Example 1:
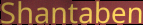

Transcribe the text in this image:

Shantaben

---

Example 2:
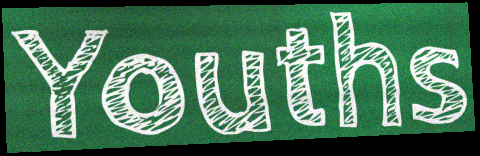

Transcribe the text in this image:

Youths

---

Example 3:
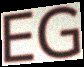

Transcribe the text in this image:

EG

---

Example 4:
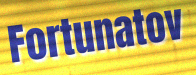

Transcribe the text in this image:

Fortunatov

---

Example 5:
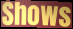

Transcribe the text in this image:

Shows